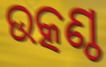
ଉତ୍କଣ୍ଠ